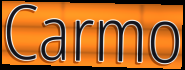
Carmo